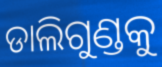
ଡାଲିଗୁଣ୍ଡକୁ